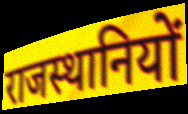
राजस्थानियों